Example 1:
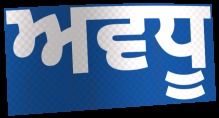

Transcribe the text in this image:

ਅਵਧੂ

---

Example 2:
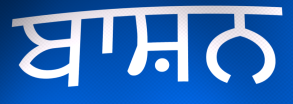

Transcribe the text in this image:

ਬਾਸ਼ਨ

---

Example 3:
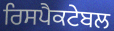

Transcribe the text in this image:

ਰਿਸਪੈਕਟੇਬਲ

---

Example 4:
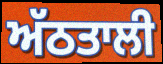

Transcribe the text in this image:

ਅੱਠਤਾਲੀ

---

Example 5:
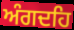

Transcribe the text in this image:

ਅੰਗਦਹਿ